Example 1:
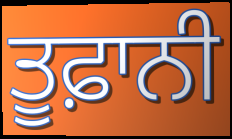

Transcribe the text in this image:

ਤੂਫ਼ਾਨੀ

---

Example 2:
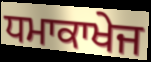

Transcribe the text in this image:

ਧਮਾਕਾਖੇਜ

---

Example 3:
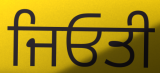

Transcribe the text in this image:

ਜਿਓਤੀ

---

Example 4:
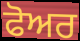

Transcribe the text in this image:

ਫੋਅਰ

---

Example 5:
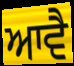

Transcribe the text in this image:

ਆਵੈ